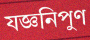
যজ্ঞনিপুণ